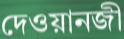
দেওয়ানজী